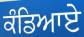
ਕੰਡਿਆਏ